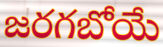
జరగబోయే